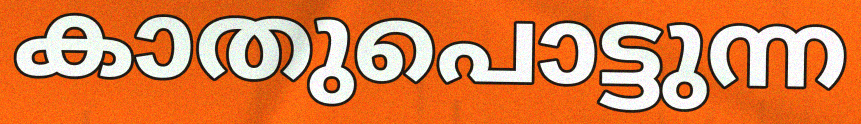
കാതുപൊട്ടുന്ന